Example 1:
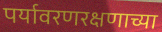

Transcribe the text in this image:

पर्यावरणरक्षणाच्या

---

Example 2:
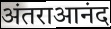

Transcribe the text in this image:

अंतराआनंद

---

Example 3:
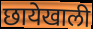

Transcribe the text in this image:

छायेखाली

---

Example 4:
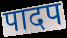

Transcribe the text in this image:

पादप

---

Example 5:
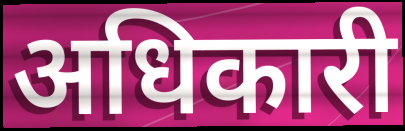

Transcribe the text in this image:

अधिकारी